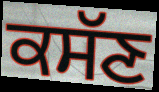
ਕਸੱਣ